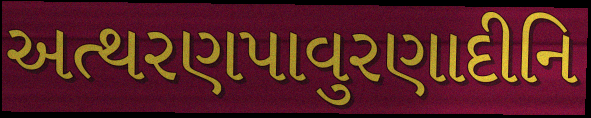
અત્થરણપાવુરણાદીનિ